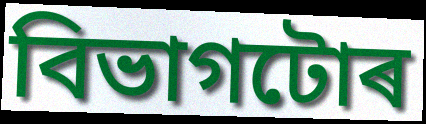
বিভাগটোৰ